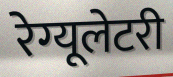
रेग्यूलेटरी